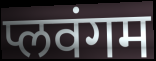
प्लवंगम